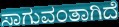
ಸಾಗುವಂತಾಗಿದೆ